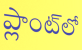
ప్లాంట్‌లో